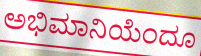
ಅಭಿಮಾನಿಯೆಂದೂ